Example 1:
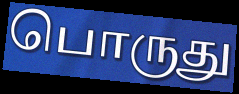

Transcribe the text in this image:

பொருது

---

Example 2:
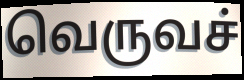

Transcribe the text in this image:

வெருவச்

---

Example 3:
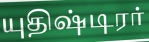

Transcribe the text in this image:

யுதிஷ்டிரர்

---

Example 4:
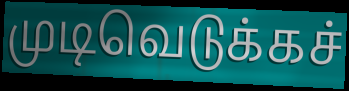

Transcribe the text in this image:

முடிவெடுக்கச்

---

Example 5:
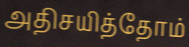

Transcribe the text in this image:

அதிசயித்தோம்